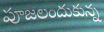
పూజలందుకున్న